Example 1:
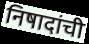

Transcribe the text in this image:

निषादांची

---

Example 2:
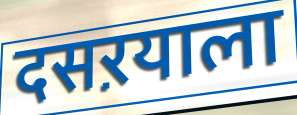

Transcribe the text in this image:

दसऱयाला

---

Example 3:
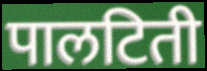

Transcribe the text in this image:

पालटिती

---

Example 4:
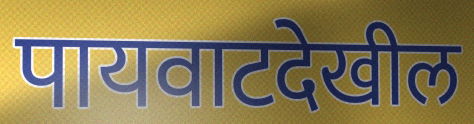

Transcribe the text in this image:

पायवाटदेखील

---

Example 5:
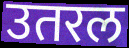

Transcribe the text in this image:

उतरल